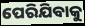
ପେରିଯିବାକୁ